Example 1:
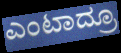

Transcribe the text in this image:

ಎಂಟಾದ್ರೂ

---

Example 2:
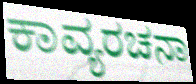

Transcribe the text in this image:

ಕಾವ್ಯರಚನಾ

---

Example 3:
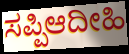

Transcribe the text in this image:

ಸಪ್ಪಿಆದೀಹಿ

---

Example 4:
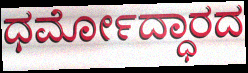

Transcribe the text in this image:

ಧರ್ಮೋದ್ಧಾರದ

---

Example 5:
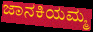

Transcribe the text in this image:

ಜಾನಕಿಯಮ್ಮ